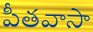
పీతవాసా